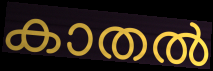
കാതൽ